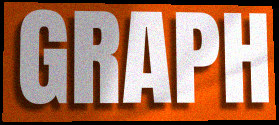
GRAPH